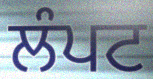
ਲੰਪਟ